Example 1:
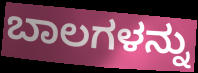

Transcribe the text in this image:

ಬಾಲಗಳನ್ನು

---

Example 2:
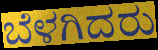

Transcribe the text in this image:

ಬೆಳಗಿದರು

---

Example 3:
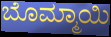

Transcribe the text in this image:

ಬೊಮ್ಮಾಯಿ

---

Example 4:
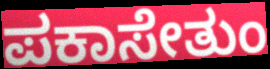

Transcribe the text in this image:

ಪಕಾಸೇತುಂ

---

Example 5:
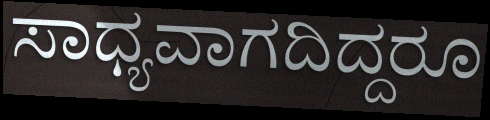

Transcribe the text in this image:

ಸಾಧ್ಯವಾಗದಿದ್ದರೂ